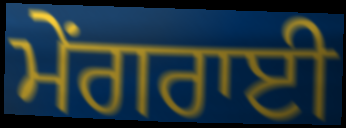
ਮੇਂਗਰਾਈ